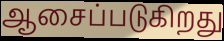
ஆசைப்படுகிறது